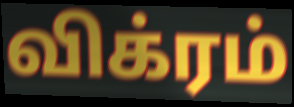
விக்ரம்